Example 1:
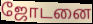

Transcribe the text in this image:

ஜோடனை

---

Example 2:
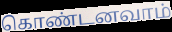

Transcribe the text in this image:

கொண்டனவாம்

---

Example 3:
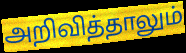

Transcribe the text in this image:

அறிவித்தாலும்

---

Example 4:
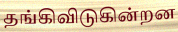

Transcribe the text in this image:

தங்கிவிடுகின்றன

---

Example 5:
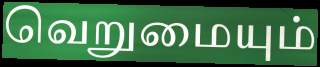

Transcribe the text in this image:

வெறுமையும்